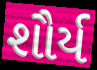
શૌર્ય